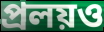
প্রলয়ও